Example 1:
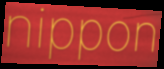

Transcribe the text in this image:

nippon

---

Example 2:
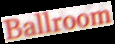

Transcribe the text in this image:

Ballroom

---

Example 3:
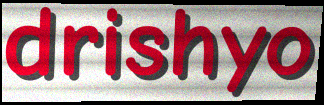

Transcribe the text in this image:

drishyo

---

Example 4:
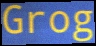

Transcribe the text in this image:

Grog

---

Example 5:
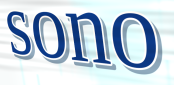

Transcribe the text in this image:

sono